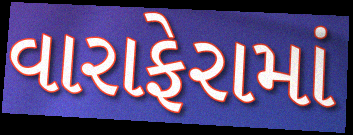
વારાફેરામાં